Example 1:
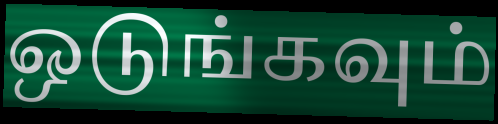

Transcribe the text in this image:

ஒடுங்கவும்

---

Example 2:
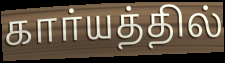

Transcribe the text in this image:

கார்யத்தில்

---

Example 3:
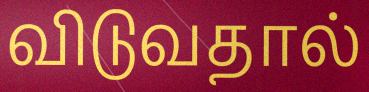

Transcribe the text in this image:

விடுவதால்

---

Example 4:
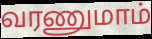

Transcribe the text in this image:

வரணுமாம்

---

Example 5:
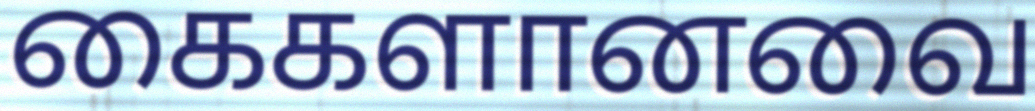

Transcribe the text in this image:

கைகளானவை